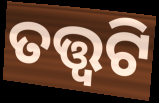
ତତ୍ତ୍ଵଟି